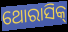
ଥୋରାସିକ୍